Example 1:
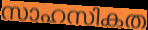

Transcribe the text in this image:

സാഹസികത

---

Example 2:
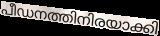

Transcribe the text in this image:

പീഡനത്തിനിരയാക്കി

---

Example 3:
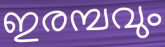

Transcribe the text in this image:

ഇരമ്പവും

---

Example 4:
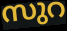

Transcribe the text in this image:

സുറ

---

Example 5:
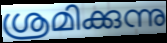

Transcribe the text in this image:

ശ്രമിക്കുന്നു